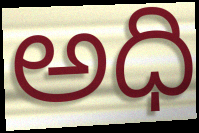
అధి